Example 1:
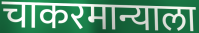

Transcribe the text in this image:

चाकरमान्याला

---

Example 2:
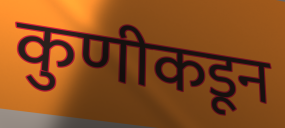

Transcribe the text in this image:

कुणीकडून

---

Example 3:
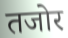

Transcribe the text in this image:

तजोर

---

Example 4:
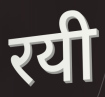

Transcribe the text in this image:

रयी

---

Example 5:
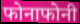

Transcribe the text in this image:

फोनाफोनी